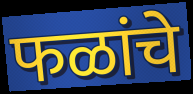
फळांचे